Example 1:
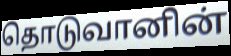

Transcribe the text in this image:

தொடுவானின்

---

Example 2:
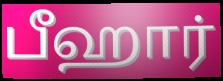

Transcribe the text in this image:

பீஹார்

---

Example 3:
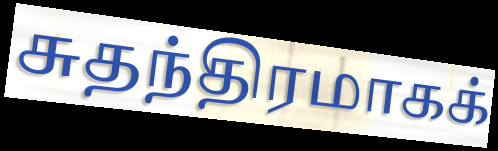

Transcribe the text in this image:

சுதந்திரமாகக்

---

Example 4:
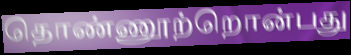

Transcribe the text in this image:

தொண்ணூற்றொன்பது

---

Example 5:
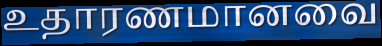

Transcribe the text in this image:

உதாரணமானவை